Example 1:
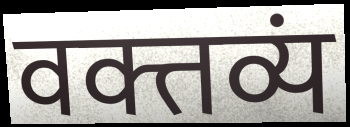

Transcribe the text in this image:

वक्तव्यं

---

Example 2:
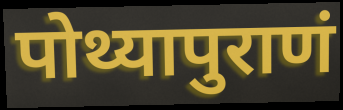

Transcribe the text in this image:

पोथ्यापुराणं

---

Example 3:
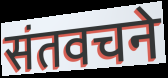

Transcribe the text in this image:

संतवचने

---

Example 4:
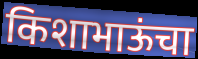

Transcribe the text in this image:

किशाभाऊंचा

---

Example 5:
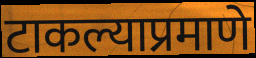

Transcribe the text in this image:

टाकल्याप्रमाणे